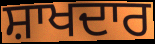
ਸ਼ਾਖਦਾਰ